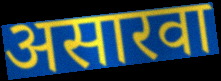
असारवा